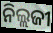
ନିଲ୍ଲଜୀ